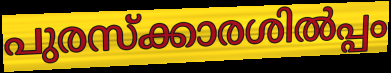
പുരസ്ക്കാരശിൽപ്പം